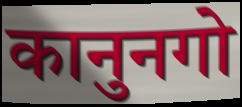
कानुनगो